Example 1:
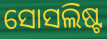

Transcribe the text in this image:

ସୋସଲିଷ୍ଟ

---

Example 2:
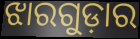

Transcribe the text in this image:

ଝାରଗୁଡ଼ାର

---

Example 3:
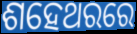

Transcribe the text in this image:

ଶହେଥରରେ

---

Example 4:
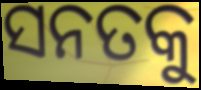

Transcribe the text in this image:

ସନତକୁ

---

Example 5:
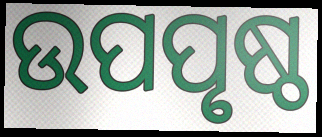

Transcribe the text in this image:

ଉପପୃଷ୍ଠ